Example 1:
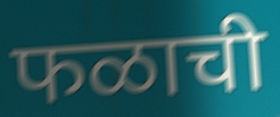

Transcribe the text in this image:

फळाची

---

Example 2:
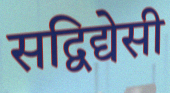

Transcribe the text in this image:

सद्विद्येसी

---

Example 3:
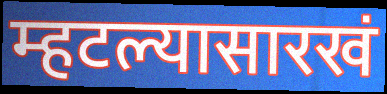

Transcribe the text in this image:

म्हटल्यासारखं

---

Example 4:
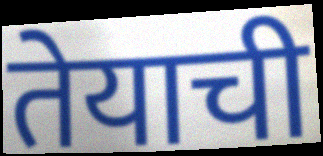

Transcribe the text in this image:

तेयाची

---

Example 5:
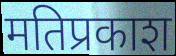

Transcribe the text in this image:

मतिप्रकाश